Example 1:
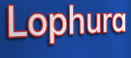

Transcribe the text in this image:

Lophura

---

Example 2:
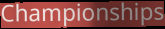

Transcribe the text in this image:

Championships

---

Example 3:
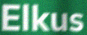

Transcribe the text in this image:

Elkus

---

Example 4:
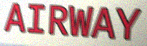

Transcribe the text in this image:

AIRWAY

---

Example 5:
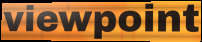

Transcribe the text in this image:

viewpoint